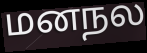
மனநல